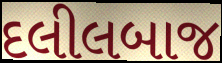
દલીલબાજ